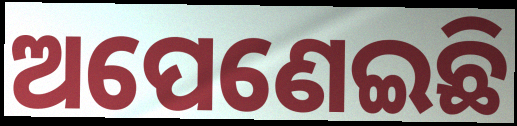
ଅପେଣେଇଛି